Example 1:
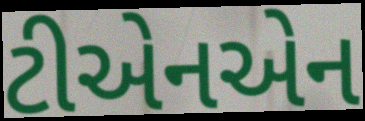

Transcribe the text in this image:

ટીએનએન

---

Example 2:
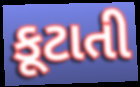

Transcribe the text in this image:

કૂટાતી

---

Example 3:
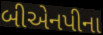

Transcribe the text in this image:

બીએનપીના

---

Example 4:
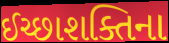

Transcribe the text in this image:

ઈચ્છાશક્તિના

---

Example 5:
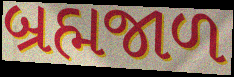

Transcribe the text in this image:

બ્રહ્મજાળ